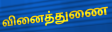
வினைத்துணை